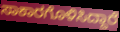
ಸಾಕಾರಗೊಳಿಸಿದ್ದಾರೆ